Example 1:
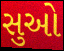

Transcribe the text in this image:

સુઓ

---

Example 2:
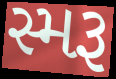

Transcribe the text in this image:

સ્મરૂ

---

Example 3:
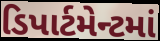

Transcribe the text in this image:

ડિપાર્ટમેન્ટમાં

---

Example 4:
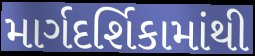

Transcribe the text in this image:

માર્ગદર્શિકામાંથી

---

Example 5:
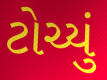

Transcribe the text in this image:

ટોચ્યું